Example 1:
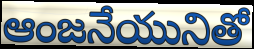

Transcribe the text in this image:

ఆంజనేయునితో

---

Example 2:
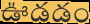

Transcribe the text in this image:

ఊడడం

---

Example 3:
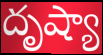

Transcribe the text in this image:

దృష్యా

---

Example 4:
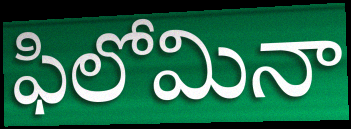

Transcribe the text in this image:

ఫిలోమినా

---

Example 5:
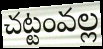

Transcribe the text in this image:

చట్టంవల్ల